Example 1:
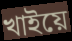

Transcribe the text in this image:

খাইয়ে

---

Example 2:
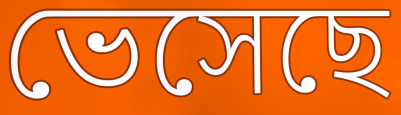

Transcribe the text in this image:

ভেসেছে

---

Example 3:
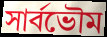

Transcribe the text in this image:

সার্বভৌম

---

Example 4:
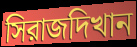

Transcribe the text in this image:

সিরাজদিখান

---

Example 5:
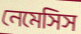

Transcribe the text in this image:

নেমেসিস